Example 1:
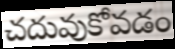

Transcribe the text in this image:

చదువుకోవడం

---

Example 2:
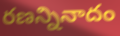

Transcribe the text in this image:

రణన్నినాదం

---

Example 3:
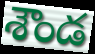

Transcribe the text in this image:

శౌండ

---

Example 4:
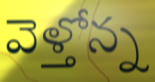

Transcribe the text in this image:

వెళ్తోన్న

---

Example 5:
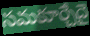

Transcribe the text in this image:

సమకూర్చేదై